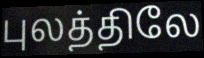
புலத்திலே